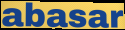
abasar